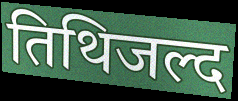
तिथिजल्द